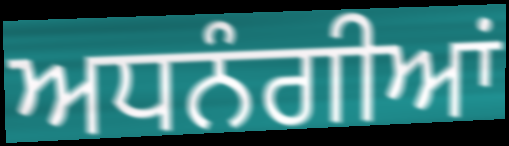
ਅਧਨੰਗੀਆਂ